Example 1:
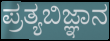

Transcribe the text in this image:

ಪ್ರತ್ಯಬಿಜ್ಞಾನ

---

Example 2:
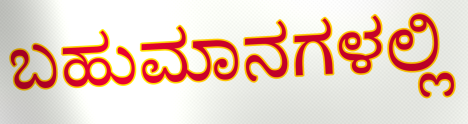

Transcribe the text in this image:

ಬಹುಮಾನಗಳಲ್ಲಿ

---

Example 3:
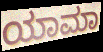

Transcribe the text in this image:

ಯಾಮಾ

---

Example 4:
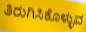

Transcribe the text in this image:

ತಿರುಗಿಸಿಕೊಳ್ಳುವ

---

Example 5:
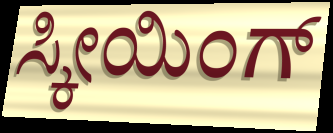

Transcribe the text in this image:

ಸ್ಕೀಯಿಂಗ್